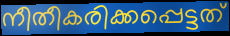
നീതീകരിക്കപ്പെട്ടത്